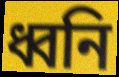
ধ্বনি